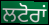
ਲਟੋਰਾਂ